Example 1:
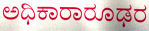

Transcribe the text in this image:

ಅಧಿಕಾರಾರೂಢರ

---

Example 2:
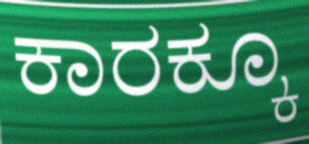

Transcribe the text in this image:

ಕಾರಕ್ಕೂ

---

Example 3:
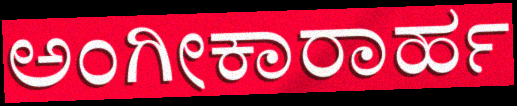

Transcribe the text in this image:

ಅಂಗೀಕಾರಾರ್ಹ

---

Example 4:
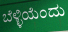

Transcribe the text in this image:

ಬೆಳ್ಳಿಯೆಂದು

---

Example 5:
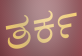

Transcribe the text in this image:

ತರ್ಕ